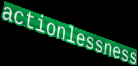
actionlessness